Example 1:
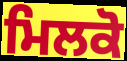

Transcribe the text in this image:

ਮਿਲਕੋ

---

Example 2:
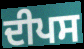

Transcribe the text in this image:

ਦੀਪਸ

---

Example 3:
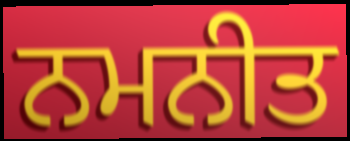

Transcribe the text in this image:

ਨਮਨੀਤ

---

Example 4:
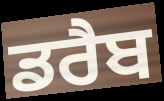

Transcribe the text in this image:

ਡਰੈਬ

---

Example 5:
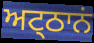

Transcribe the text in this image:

ਅਟ੍ਠਾਨਂ